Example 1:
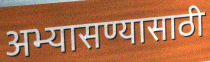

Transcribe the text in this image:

अभ्यासण्यासाठी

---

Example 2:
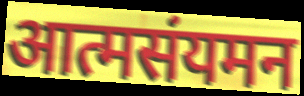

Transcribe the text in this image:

आत्मसंयमन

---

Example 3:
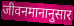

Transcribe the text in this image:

जीवनमानानुसार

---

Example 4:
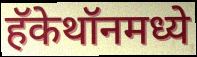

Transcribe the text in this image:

हॅकेथॉनमध्ये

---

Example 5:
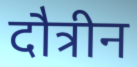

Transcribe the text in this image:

दौत्रीन